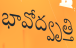
భావోద్వృత్తి